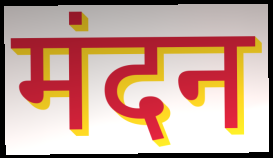
मंदन